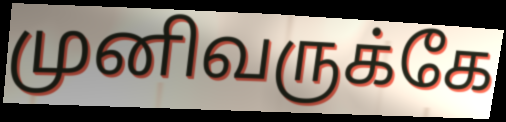
முனிவருக்கே